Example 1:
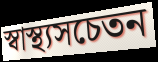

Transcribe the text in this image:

স্বাস্থ্যসচেতন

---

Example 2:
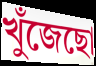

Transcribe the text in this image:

খুঁজেছো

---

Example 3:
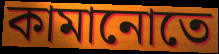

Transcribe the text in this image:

কামানোতে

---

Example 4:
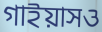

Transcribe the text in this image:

গাইয়াসও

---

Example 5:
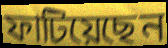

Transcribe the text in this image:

ফাটিয়েছেন